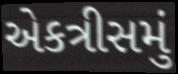
એકત્રીસમું